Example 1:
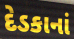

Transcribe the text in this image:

દેડકાનાં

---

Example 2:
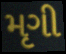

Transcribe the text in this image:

મૃગી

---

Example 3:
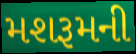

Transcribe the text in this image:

મશરૂમની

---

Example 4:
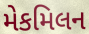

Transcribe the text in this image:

મેકમિલન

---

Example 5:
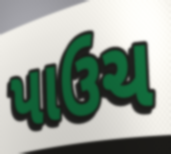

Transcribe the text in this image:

પાઉચ